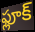
ఫ్లూక్